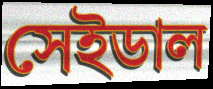
সেইডাল